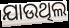
ଯାଉଥିଲ